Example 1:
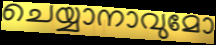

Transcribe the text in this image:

ചെയ്യാനാവുമോ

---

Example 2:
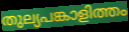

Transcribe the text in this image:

തുല്യപങ്കാളിത്തം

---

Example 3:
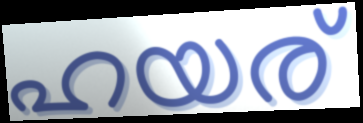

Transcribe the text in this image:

ഹയര്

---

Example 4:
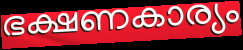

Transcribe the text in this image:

ഭക്ഷണകാര്യം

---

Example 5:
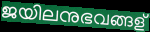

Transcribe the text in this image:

ജയിലനുഭവങ്ങള്